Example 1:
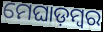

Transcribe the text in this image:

ମେଘାଡ଼ମ୍ବର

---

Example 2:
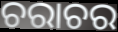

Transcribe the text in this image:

ଚରାଚର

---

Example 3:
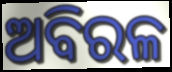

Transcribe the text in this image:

ଅବିରଳ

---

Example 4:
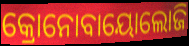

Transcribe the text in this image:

କ୍ରୋନୋବାୟୋଲୋଜି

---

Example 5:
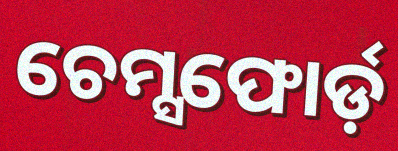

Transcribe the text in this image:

ଚେମ୍ସଫୋର୍ଡ଼